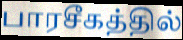
பாரசீகத்தில்